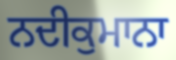
ਨਦੀਕੁਮਾਨਾ